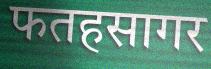
फतहसागर